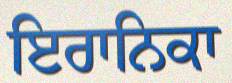
ਇਰਾਨਿਕਾ